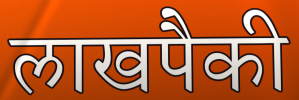
लाखपैकी